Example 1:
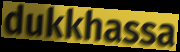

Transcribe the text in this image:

dukkhassa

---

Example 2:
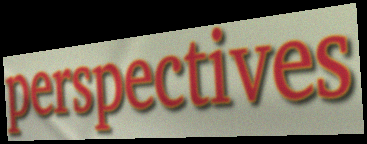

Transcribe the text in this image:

perspectives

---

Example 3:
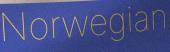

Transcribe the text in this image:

Norwegian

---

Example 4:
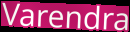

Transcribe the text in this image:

Varendra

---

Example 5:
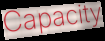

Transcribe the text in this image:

Capacity